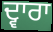
ਦ੍ਵਾਰਾ